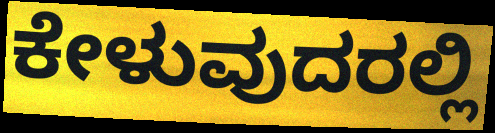
ಕೇಳುವುದರಲ್ಲಿ